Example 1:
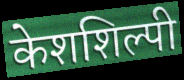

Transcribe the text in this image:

केशशिल्पी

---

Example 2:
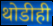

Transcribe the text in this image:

थोडीही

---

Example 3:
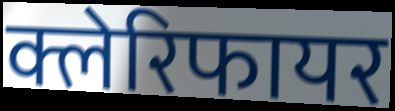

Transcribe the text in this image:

क्लेरिफायर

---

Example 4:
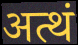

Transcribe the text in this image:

अत्थं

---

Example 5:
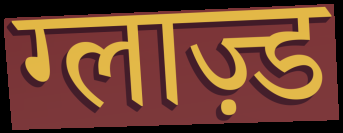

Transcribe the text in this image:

ग्लाज़्ड